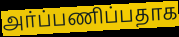
அர்ப்பணிப்பதாக